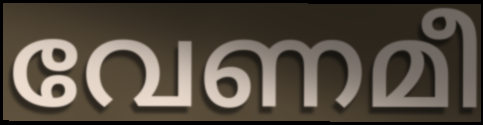
വേണമീ